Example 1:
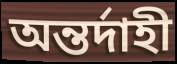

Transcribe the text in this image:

অন্তর্দাহী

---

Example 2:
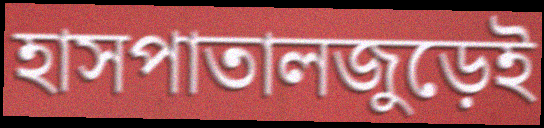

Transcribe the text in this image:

হাসপাতালজুড়েই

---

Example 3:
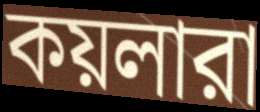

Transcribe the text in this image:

কয়লারা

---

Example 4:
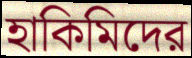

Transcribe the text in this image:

হাকিমিদের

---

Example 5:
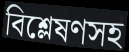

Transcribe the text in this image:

বিশ্লেষণসহ